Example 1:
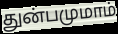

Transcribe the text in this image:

துன்பமுமாம்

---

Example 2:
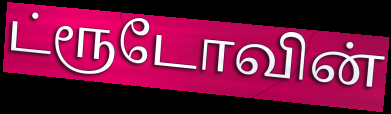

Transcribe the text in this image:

ட்ரூடோவின்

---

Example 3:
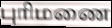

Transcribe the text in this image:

புரிமணை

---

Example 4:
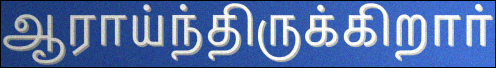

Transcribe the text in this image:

ஆராய்ந்திருக்கிறார்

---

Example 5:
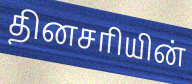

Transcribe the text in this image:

தினசரியின்